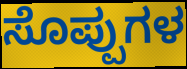
ಸೊಪ್ಪುಗಳ